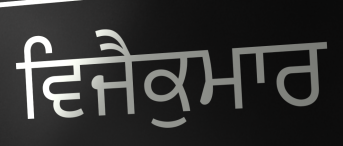
ਵਿਜੈਕੁਮਾਰ